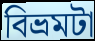
বিভ্রমটা